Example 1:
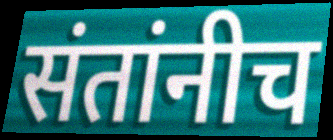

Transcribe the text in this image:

संतांनीच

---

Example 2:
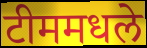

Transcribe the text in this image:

टीममधले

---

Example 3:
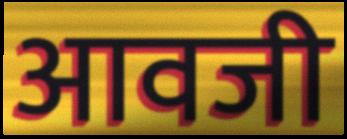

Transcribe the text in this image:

आवजी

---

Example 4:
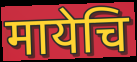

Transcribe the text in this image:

मायेचि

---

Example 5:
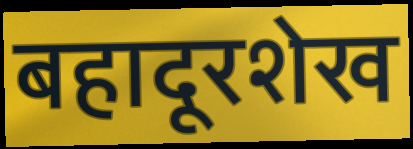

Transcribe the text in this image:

बहादूरशेख